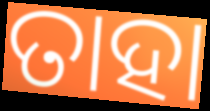
ତାହା